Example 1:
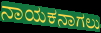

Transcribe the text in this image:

ನಾಯಕನಾಗಲು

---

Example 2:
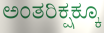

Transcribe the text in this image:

ಅಂತರಿಕ್ಷಕ್ಕೂ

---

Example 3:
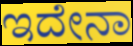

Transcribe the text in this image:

ಇದೇನಾ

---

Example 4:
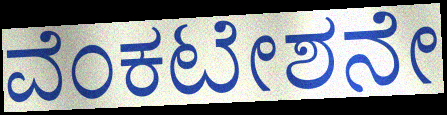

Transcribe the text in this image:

ವೆಂಕಟೇಶನೇ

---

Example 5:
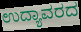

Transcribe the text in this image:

ಉದ್ಯಾವರದ